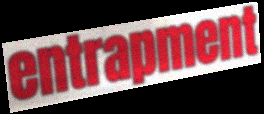
entrapment